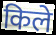
किले